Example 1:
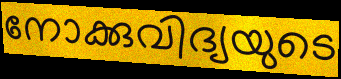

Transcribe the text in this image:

നോക്കുവിദ്യയുടെ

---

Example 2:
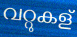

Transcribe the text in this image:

വറ്റുകള്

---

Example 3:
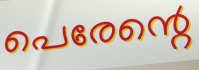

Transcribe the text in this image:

പെരേന്റെ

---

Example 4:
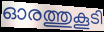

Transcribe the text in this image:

ഓരത്തുകൂടി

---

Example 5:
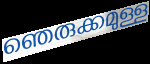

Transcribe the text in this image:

ഞെരുക്കമുള്ള